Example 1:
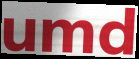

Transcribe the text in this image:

umd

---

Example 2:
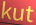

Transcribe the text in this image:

kut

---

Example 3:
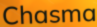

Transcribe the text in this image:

Chasma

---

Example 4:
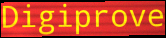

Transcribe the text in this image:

Digiprove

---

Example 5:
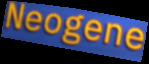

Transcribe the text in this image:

Neogene